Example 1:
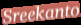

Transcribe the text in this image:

Sreekanto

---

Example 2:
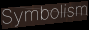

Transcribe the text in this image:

Symbolism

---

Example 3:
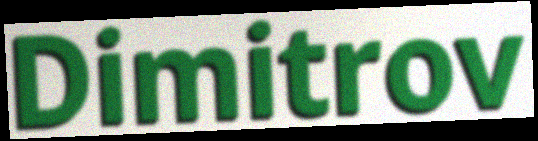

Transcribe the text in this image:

Dimitrov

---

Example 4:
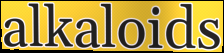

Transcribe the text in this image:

alkaloids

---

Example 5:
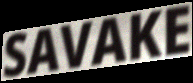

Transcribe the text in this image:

SAVAKE